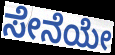
ಸೇನೆಯೇ